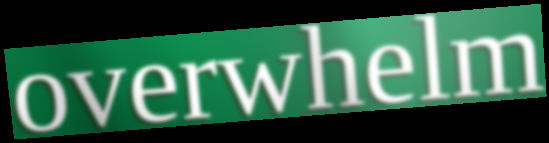
overwhelm